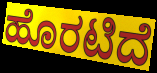
ಹೊರಟಿದೆ